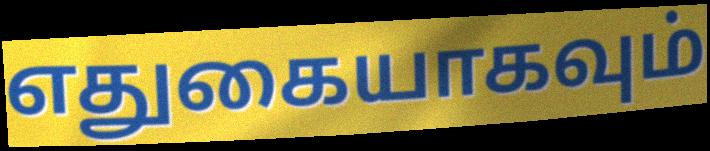
எதுகையாகவும்